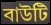
বাউটি